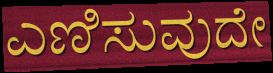
ಎಣಿಸುವುದೇ